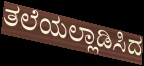
ತಲೆಯಲ್ಲಾಡಿಸಿದ